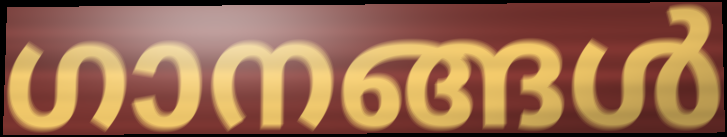
ഗാനങ്ങൾ